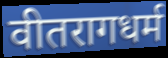
वीतरागधर्म